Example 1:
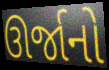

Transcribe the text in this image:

ઊર્જાનો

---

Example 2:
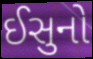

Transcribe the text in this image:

ઈસુનો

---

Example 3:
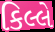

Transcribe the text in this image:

કિલ્લે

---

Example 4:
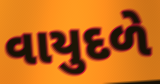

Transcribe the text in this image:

વાયુદળે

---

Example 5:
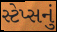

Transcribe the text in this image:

સ્ટેપ્સનું